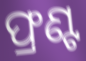
ଫ୍ରଣ୍ଟ